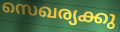
സെഖര്യക്കു